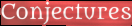
Conjectures